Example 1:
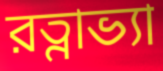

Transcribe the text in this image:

রত্নাভ্যা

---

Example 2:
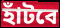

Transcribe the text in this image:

হাঁটবে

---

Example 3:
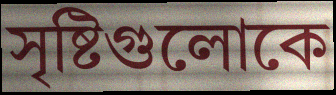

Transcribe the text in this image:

সৃষ্টিগুলোকে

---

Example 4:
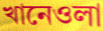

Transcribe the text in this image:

খানেওলা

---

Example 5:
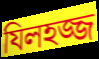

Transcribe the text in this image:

যিলহজ্জ